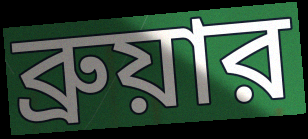
ব্রুয়ার